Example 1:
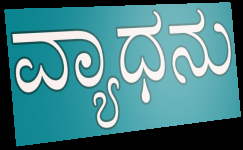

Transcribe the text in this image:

ವ್ಯಾಧನು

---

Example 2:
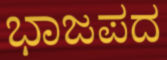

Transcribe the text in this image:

ಭಾಜಪದ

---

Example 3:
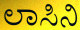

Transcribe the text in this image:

ಲಾಸಿನಿ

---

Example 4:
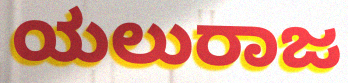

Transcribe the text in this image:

ಯಲುರಾಜ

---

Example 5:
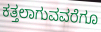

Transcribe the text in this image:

ಕತ್ತಲಾಗುವವರೆಗೂ